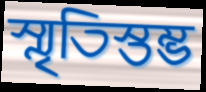
স্মৃতিস্তম্ভ